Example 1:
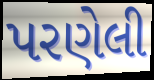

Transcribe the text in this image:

પરણેલી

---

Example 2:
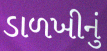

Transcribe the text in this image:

ડાળખીનું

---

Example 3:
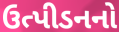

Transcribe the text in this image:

ઉત્પીડનનો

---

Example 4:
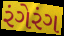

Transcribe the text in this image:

રંગેરંગ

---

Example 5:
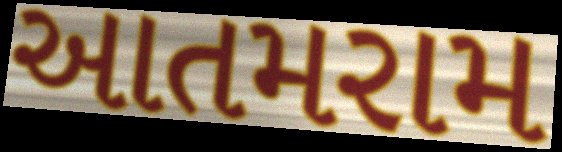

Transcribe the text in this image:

આતમરામ